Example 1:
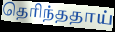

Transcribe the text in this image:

தெரிந்ததாய்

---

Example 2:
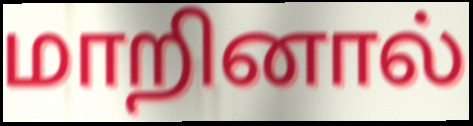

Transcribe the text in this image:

மாறினால்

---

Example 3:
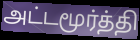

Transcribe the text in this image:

அட்டமூர்த்தி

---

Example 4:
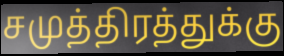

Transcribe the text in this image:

சமுத்திரத்துக்கு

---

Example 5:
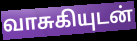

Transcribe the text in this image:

வாசுகியுடன்